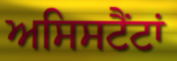
ਅਸਿਸਟੈਂਟਾਂ